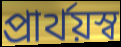
প্রার্থয়স্ব